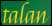
talan